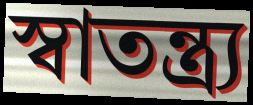
স্বাতন্ত্র্য